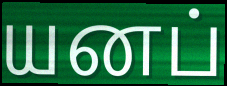
யனப்